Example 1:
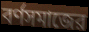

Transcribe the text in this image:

বর্ণসমাজের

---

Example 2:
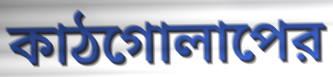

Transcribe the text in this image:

কাঠগোলাপের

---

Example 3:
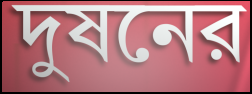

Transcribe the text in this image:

দুষনের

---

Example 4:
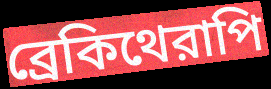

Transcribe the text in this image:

ব্রেকিথেরাপি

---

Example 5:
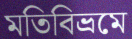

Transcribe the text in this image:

মতিবিভ্রমে